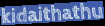
kidaithathu